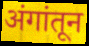
अंगांतून